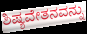
ಶಿಷ್ಯವೇತನವನ್ನು